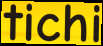
tichi